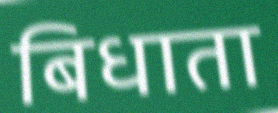
बिधाता